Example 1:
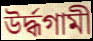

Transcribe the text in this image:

উৰ্দ্ধগামী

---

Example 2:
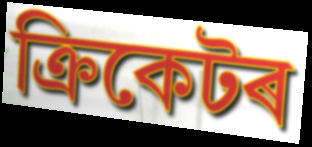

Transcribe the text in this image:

ক্ৰিকেটৰ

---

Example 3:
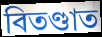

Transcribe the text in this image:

বিতণ্ডাত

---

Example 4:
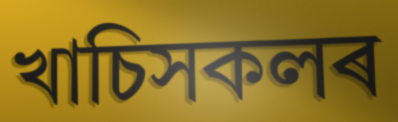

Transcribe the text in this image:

খাচিসকলৰ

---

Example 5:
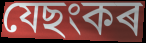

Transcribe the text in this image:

যেছংকৰ